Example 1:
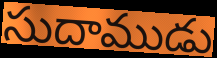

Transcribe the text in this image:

సుదాముడు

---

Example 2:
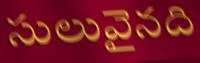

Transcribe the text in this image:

సులువైనది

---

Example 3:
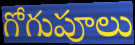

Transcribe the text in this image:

గోగుపూలు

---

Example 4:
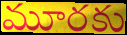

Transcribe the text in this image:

మూరకు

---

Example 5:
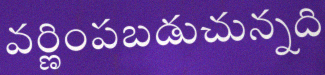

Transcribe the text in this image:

వర్ణింపబడుచున్నది